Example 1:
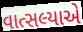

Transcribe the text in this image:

વાત્સલ્યાએ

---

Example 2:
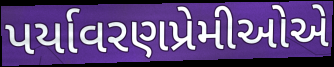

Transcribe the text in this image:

પર્યાવરણપ્રેમીઓએ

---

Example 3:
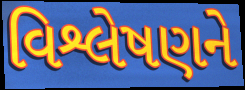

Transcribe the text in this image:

વિશ્લેષણને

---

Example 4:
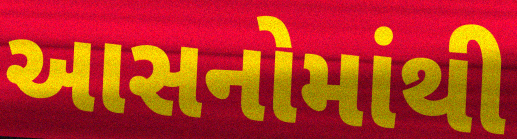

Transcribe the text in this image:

આસનોમાંથી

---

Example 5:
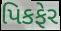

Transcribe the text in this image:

પિકફેર